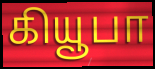
கியூபா